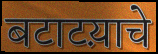
बटाटय़ाचे